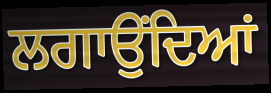
ਲਗਾਉਂਦਿਆਂ